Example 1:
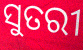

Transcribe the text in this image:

ସୁତରୀ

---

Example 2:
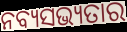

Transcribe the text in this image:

ନବ୍ୟସଭ୍ୟତାର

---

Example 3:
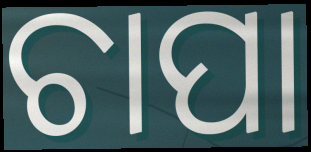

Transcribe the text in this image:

ଚାପା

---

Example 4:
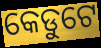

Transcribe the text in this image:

କେଡୁଟେ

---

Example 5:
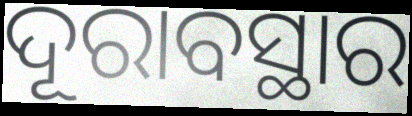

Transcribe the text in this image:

ଦୂରାବସ୍ଥାର